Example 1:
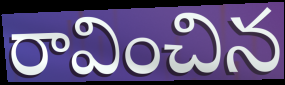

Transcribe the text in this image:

రావించిన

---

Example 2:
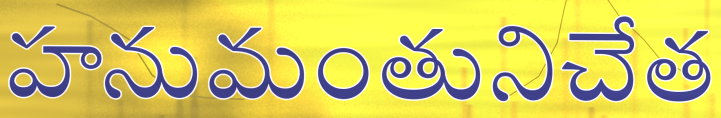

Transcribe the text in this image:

హనుమంతునిచేత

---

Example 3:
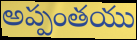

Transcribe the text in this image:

అప్పంతయు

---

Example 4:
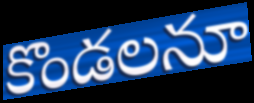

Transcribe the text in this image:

కొండలనూ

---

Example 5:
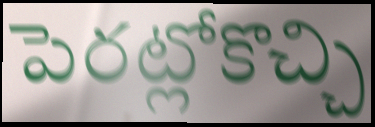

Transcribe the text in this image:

పెరట్లోకొచ్చి